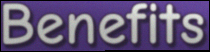
Benefits